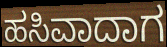
ಹಸಿವಾದಾಗ